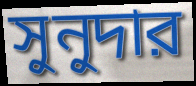
সুনুদার